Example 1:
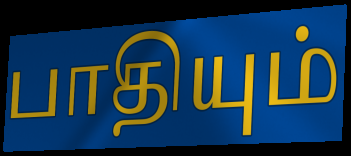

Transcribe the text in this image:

பாதியும்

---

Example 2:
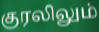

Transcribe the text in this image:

குரலிலும்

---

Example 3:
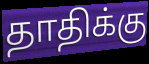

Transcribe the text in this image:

தாதிக்கு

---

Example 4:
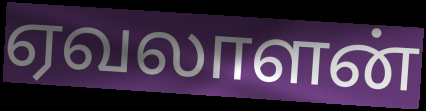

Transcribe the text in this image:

ஏவலாளன்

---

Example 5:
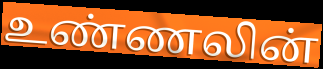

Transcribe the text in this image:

உண்ணலின்